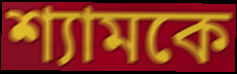
শ্যামকে